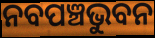
ନବପଞ୍ଚଭୁବନ